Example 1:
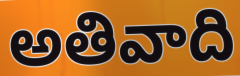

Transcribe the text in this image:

అతివాది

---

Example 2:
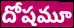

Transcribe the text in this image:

దోషమూ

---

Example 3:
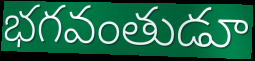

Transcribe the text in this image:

భగవంతుడూ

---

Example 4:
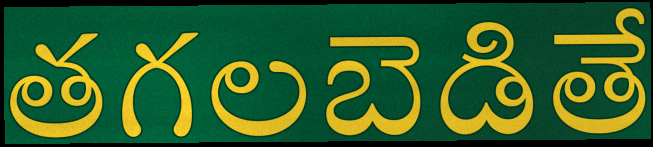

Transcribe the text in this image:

తగలబెడితే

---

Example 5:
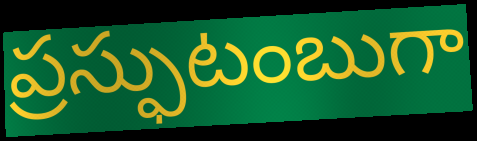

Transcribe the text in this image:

ప్రస్ఫుటంబుగా